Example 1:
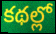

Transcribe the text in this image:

కథల్లో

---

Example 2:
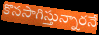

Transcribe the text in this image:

కొనసాగిస్తున్నారనే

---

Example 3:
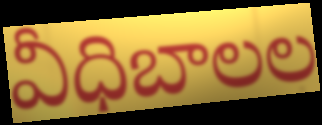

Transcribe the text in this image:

వీధిబాలల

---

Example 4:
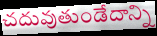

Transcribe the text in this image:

చదువుతుండేదాన్ని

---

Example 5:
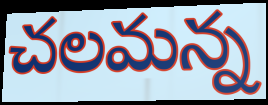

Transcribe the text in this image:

చలమన్న